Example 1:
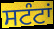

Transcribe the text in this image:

ਸਟੰਟਾਂ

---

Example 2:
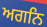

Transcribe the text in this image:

ਅਗਨਿ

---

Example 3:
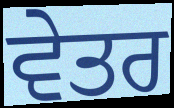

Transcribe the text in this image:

ਵੇਤਰ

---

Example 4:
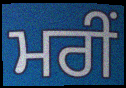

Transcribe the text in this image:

ਮਰੀਂ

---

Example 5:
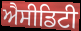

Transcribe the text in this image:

ਐਸੀਡਿਟੀ